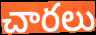
చారలు